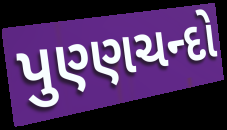
પુણ્ણચન્દો